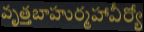
వృత్తబాహుర్మహావీర్యో